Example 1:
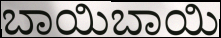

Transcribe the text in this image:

ಬಾಯಿಬಾಯಿ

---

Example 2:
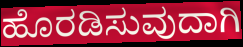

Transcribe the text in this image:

ಹೊರಡಿಸುವುದಾಗಿ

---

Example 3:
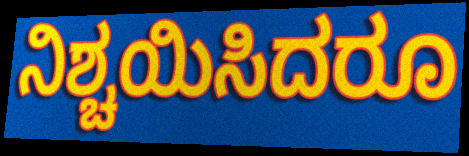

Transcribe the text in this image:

ನಿಶ್ಚಯಿಸಿದರೂ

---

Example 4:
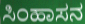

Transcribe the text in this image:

ಸಿಂಹಾಸನ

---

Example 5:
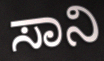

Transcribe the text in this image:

ಸಾನಿ